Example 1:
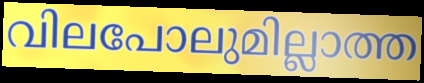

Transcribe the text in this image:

വിലപോലുമില്ലാത്ത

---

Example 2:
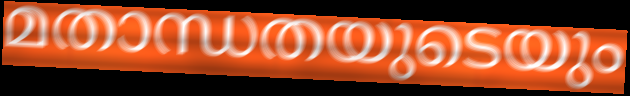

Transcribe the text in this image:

മതാന്ധതയുടെയും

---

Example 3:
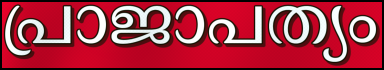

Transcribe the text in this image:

പ്രാജാപത്യം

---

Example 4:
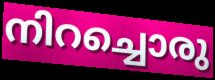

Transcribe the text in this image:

നിറച്ചൊരു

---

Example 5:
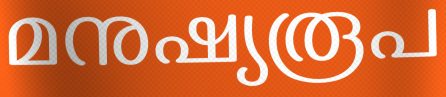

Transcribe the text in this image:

മനുഷ്യരൂപ